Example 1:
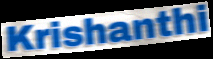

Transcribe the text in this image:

Krishanthi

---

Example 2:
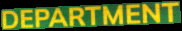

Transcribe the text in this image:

DEPARTMENT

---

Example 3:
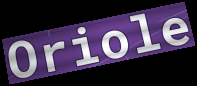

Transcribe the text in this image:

Oriole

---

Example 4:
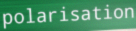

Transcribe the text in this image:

polarisation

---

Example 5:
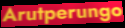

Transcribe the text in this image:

Arutperungo